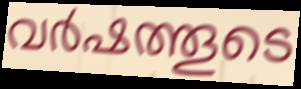
വർഷത്തൂടെ